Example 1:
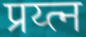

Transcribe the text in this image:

प्रय्त्न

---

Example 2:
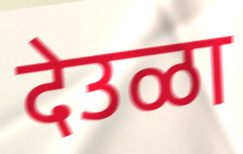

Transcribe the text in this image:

देउळा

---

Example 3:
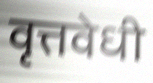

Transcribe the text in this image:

वृत्तवेधी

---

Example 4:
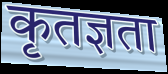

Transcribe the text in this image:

कृतज्ञता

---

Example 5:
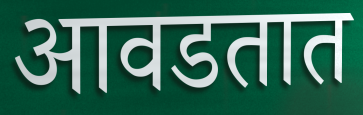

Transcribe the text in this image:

आवडतात